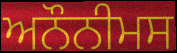
ਅਨੌਨੀਮਸ